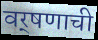
वर्षणाची